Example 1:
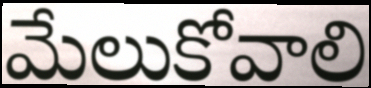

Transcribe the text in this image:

మేలుకోవాలి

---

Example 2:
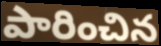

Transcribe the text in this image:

పారించిన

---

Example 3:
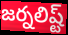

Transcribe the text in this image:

జర్నలిష్ట్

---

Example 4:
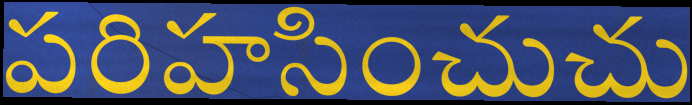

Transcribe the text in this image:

పరిహసించుచు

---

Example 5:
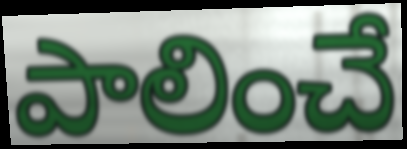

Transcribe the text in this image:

పాలించే